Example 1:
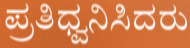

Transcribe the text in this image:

ಪ್ರತಿಧ್ವನಿಸಿದರು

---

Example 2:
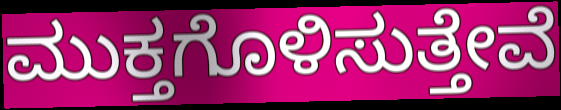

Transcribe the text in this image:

ಮುಕ್ತಗೊಳಿಸುತ್ತೇವೆ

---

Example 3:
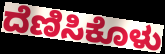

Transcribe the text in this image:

ದೆಣಿಸಿಕೊಳು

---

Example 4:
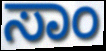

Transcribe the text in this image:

ಸಾಂ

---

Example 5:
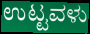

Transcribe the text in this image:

ಉಟ್ಟವಳು